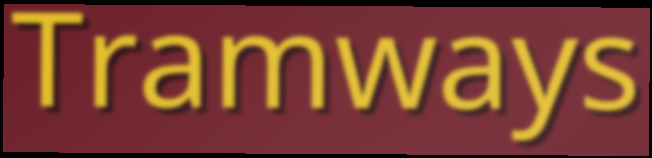
Tramways